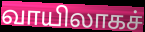
வாயிலாகச்